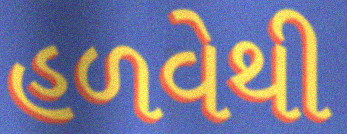
હળવેથી